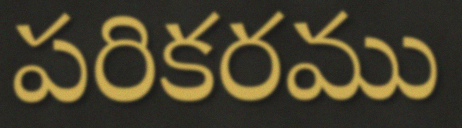
పరికరము